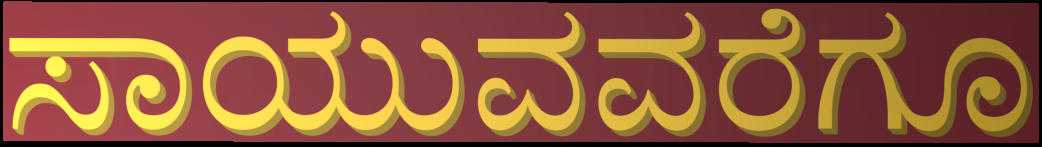
ಸಾಯುವವರೆಗೂ